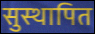
सुस्थापित